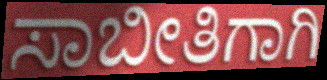
ಸಾಬೀತಿಗಾಗಿ